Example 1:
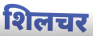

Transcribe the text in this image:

शिलचर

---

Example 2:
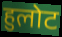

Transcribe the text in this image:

हुलोट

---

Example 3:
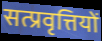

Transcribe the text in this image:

सत्प्रवृत्तियों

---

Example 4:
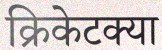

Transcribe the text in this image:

क्रिकेटक्या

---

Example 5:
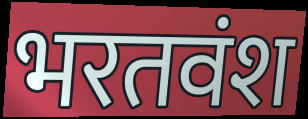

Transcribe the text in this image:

भरतवंश